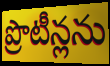
ప్రొటీన్లను